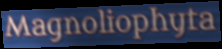
Magnoliophyta